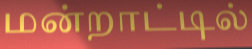
மன்றாட்டில்